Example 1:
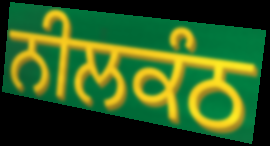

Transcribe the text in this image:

ਨੀਲਕੰਠ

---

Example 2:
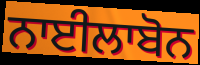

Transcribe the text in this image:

ਨਾਈਲਾਬੋਨ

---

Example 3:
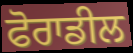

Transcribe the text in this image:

ਫੋਰਾਡੀਲ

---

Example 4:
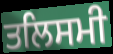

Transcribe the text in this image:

ਤਲਿਸਮੀ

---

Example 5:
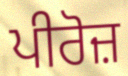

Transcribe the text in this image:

ਪੀਰੋਜ਼